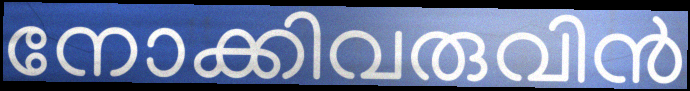
നോക്കിവരുവിൻ